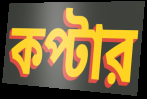
কপ্টার